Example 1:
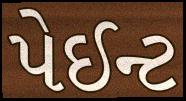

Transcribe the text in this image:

પેઈન્ટ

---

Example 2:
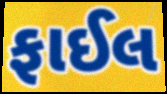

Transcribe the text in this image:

ફાઈલ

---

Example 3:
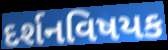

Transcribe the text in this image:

દર્શનવિષયક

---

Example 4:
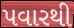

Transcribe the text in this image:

પવારથી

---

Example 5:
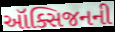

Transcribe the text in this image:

ઑક્સિજનની